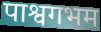
पाश्वगभम